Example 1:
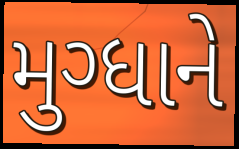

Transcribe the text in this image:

મુગ્ધાને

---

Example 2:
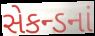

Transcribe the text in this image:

સેકન્ડનાં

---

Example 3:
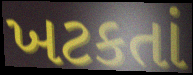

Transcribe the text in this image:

ખટકતાં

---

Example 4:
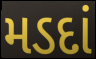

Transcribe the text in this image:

મડદાં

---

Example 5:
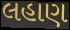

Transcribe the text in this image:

લહાણ